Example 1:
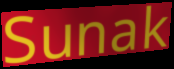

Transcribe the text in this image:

Sunak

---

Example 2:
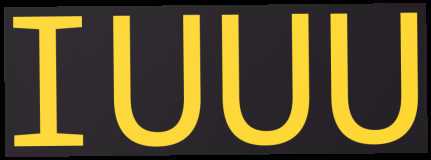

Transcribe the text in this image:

IUUU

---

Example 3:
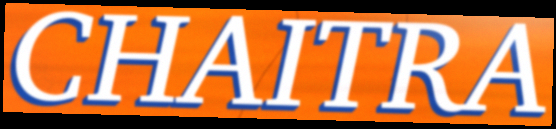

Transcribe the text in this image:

CHAITRA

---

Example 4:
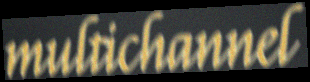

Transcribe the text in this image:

multichannel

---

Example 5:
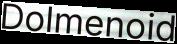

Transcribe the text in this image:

Dolmenoid